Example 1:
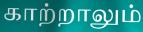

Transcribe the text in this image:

காற்றாலும்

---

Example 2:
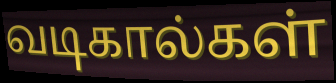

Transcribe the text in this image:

வடிகால்கள்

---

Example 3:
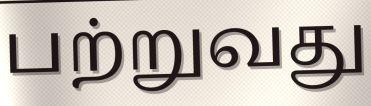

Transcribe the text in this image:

பற்றுவது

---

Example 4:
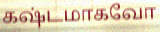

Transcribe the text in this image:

கஷ்டமாகவோ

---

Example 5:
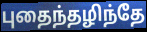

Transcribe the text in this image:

புதைந்தழிந்தே